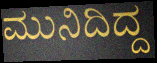
ಮುನಿದಿದ್ದ